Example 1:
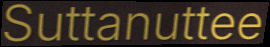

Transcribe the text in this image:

Suttanuttee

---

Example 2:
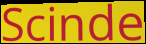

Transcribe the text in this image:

Scinde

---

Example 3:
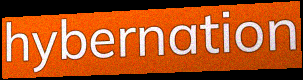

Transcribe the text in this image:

hybernation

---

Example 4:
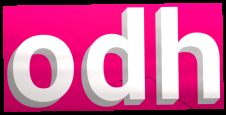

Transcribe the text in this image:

odh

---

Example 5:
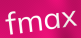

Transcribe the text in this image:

fmax